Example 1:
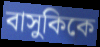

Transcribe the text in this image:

বাসুকিকে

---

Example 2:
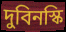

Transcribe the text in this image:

দুবিনস্কি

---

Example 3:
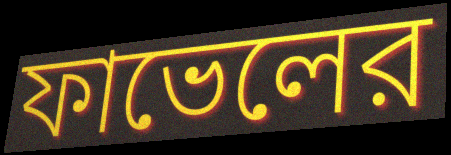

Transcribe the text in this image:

ফাভেলের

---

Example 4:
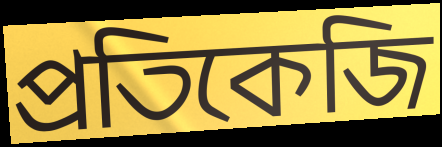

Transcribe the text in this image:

প্রতিকেজি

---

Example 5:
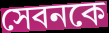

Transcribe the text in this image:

সেবনকে